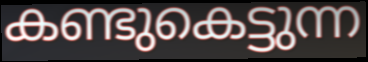
കണ്ടുകെട്ടുന്ന